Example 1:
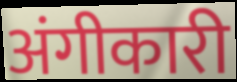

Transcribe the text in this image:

अंगीकारी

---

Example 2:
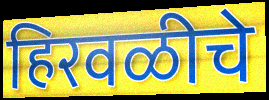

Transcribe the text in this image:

हिरवळीचे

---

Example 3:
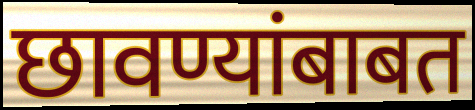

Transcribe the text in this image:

छावण्यांबाबत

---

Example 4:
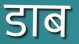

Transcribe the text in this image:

डाब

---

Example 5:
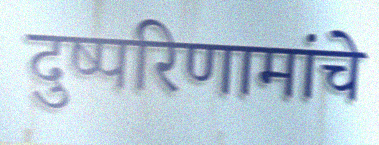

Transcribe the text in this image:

दुष्परिणामांचे